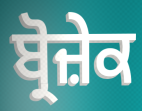
ਬ੍ਰੋਜ਼ੇਕ